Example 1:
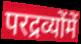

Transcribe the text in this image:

परद्रव्योंमें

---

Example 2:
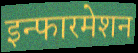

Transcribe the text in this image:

इन्फारमेशन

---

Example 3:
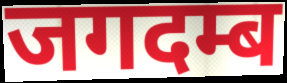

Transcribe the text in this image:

जगदम्ब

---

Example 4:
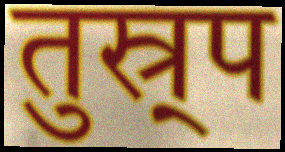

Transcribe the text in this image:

तुस्र्प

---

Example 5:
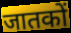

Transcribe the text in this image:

जातकों